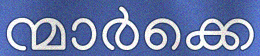
ന്മാർക്കെ